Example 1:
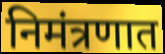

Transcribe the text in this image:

निमंत्रणात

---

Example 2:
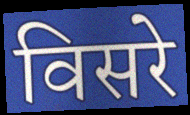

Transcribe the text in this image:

विसरे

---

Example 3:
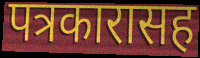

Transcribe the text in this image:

पत्रकारासह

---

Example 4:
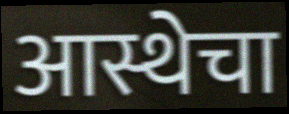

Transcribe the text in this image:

आस्थेचा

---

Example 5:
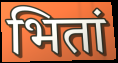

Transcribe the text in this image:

भितां